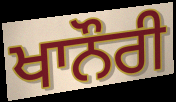
ਖਾਨੌਰੀ